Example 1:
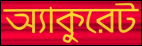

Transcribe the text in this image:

অ্যাকুরেট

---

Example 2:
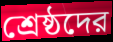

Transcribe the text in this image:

শ্রেষ্ঠদের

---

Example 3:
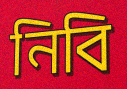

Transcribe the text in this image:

নিবি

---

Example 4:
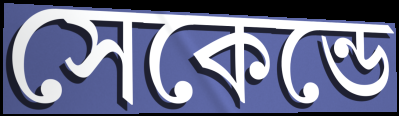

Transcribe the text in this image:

সেকেন্ডে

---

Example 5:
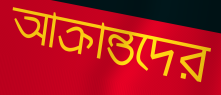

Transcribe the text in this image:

আক্রান্তদের